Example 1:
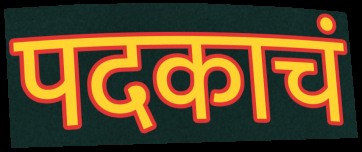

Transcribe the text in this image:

पदकाचं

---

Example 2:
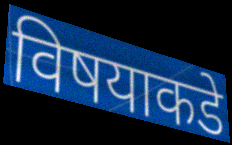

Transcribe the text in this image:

विषयाकडे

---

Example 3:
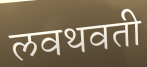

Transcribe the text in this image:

लवथवती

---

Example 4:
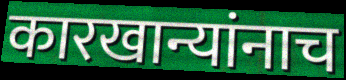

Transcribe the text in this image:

कारखान्यांनाच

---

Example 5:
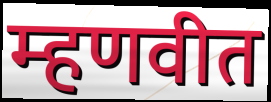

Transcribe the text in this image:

म्हणवीत